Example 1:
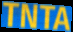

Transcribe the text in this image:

TNTA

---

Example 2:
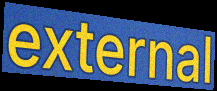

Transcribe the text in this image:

external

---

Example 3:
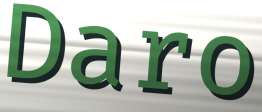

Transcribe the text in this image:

Daro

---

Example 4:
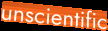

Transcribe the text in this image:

unscientific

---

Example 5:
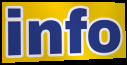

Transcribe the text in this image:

info